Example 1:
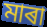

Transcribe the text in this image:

মাৰা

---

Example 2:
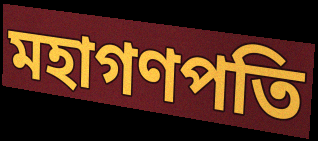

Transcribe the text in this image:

মহাগণপতি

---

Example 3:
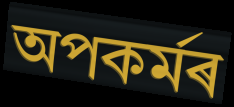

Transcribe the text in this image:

অপকৰ্মৰ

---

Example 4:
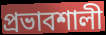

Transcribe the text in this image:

প্ৰভাবশালী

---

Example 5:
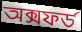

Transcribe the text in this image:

অক্সফৰ্ড